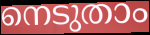
നെടുതാം